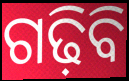
ଗଢ଼ିବି